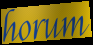
horum